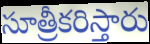
సూత్రీకరిస్తారు